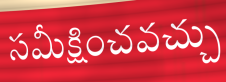
సమీక్షించవచ్చు